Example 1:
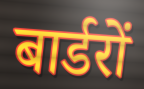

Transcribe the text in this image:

बार्डरों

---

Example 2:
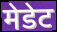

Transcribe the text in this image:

मेडेट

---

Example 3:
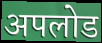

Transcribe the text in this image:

अपलोड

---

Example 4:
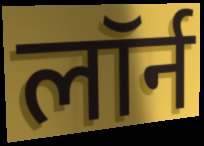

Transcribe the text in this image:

लॉर्न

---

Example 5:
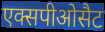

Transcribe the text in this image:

एक्सपीओसैट